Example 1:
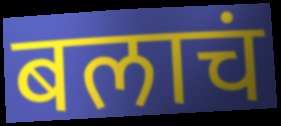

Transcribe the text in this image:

बलाचं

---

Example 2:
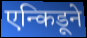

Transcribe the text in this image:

एन्किडूने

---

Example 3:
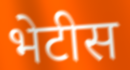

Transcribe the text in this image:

भेटीस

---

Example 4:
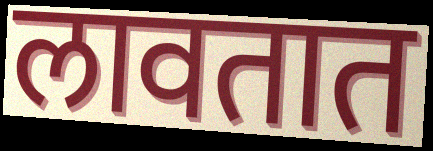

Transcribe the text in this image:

लावतात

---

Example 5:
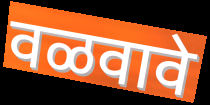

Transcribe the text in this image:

वळवावे